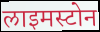
लाइमस्टोन